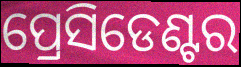
ପ୍ରେସିଡେଣ୍ଟର